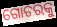
ଗୋଚରକୁ